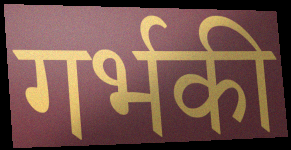
गर्भकी